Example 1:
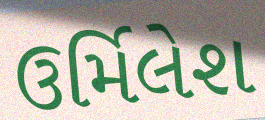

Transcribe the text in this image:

ઉર્મિલેશ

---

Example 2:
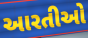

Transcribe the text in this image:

આરતીઓ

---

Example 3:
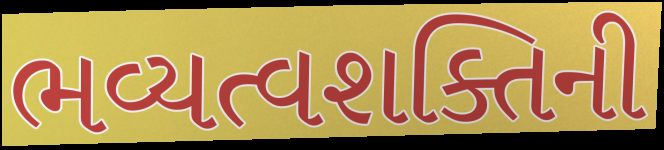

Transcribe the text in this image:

ભવ્યત્વશક્તિની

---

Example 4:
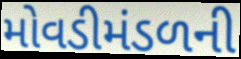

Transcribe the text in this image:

મોવડીમંડળની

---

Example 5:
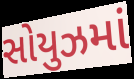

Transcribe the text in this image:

સોયુઝમાં